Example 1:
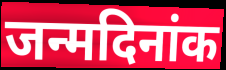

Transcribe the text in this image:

जन्मदिनांक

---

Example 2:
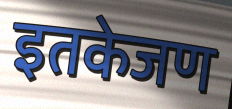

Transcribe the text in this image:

इतकेजण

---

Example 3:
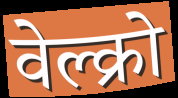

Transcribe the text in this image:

वेल्क्रो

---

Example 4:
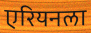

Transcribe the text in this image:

एरियनला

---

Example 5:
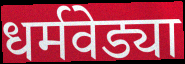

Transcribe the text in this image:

धर्मवेड्या